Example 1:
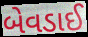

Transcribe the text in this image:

બેવડાઈ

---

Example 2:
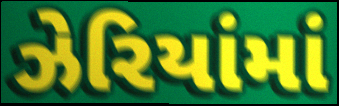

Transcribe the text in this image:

ઝેરિયાંમાં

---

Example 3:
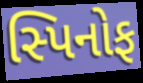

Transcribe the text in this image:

સ્પિનોફ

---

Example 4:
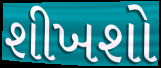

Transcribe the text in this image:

શીખશો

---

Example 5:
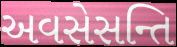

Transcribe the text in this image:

અવસેસન્તિ